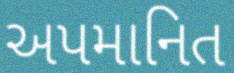
અપમાનિત